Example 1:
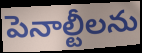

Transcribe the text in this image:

పెనాల్టీలను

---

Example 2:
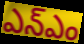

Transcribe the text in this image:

ఎన్ఎం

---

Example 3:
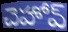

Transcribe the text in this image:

చెహోవ్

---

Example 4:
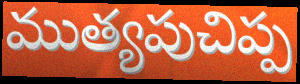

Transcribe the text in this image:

ముత్యపుచిప్ప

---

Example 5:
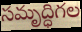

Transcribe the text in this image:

సమృద్ధిగల